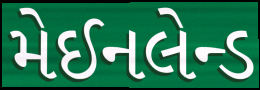
મેઈનલેન્ડ